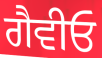
ਗੈਵੀਓ